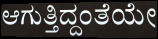
ಆಗುತ್ತಿದ್ದಂತೆಯೇ